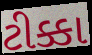
ટીક્કા